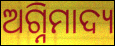
ଅଗ୍ନିମାଦ୍ୟ